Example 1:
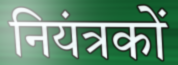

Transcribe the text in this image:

नियंत्रकों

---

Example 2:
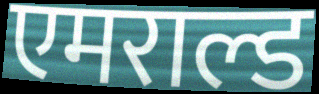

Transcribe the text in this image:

एमराल्‍ड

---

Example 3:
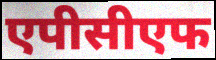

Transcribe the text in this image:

एपीसीएफ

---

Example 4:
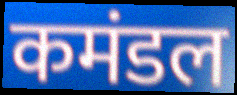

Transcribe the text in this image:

कमंडल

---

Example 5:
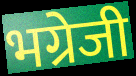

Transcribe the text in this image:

भग्रेजी